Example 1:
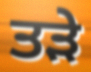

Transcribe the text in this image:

ਤੜੇ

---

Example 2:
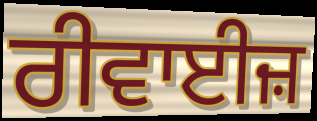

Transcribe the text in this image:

ਰੀਵਾਈਜ਼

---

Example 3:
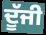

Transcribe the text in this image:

ਦੂੱਜੀ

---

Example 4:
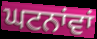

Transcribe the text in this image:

ਘਟਨਾਂਵਾਂ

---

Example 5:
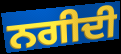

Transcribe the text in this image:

ਨਗੀਦੀ